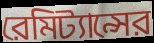
রেমিট্যান্সের